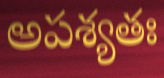
అపశ్యతః